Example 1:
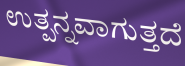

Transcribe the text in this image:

ಉತ್ಪನ್ನವಾಗುತ್ತದೆ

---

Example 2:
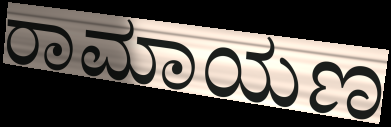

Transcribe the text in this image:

ರಾಮಾಯಣ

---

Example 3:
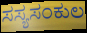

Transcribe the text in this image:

ಸಸ್ಯಸಂಕುಲ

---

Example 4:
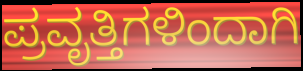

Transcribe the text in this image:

ಪ್ರವೃತ್ತಿಗಳಿಂದಾಗಿ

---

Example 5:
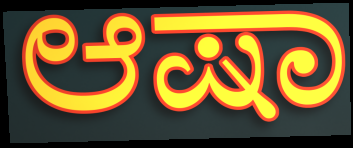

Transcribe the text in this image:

ಆಷಾ